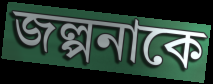
জল্পনাকে